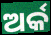
ଅର୍କ